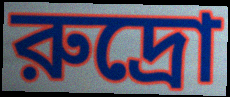
রুদ্রো